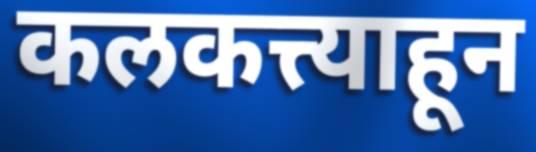
कलकत्त्याहून